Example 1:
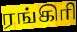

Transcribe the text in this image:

ரங்கிரி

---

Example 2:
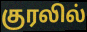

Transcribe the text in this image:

குரலில்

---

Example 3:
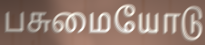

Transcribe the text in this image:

பசுமையோடு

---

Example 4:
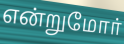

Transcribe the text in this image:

என்றுமோர்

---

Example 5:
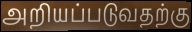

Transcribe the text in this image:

அறியப்படுவதற்கு